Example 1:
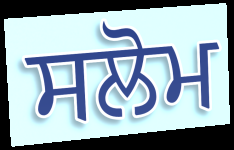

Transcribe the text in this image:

ਸਲੋਮ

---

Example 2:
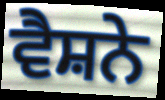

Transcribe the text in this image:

ਵੈਸ਼ਨੇ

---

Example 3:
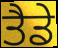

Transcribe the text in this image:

ਤੈਡੇ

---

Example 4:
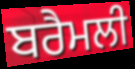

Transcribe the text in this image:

ਬਰੈਮਲੀ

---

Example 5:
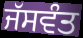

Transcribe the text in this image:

ਜੱਸਵੰਤ